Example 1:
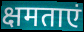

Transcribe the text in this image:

क्षमताएं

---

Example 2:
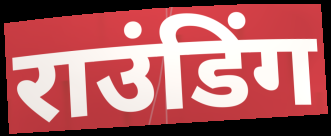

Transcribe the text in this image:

राउंडिंग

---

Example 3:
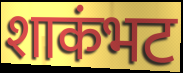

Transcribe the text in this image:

शाकंभट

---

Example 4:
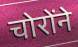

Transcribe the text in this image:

चोरोंने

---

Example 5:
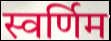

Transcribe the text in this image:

स्‍वर्णिम